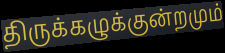
திருக்கழுக்குன்றமும்